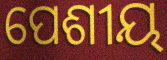
ପେଶୀୟ